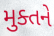
મુક્તને